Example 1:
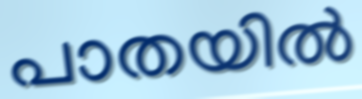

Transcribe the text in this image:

പാതയിൽ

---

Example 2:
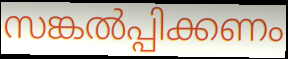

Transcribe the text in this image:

സങ്കൽപ്പിക്കണം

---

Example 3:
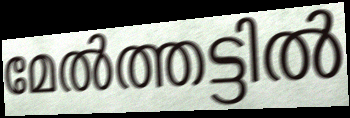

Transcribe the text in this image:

മേൽത്തട്ടിൽ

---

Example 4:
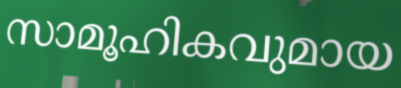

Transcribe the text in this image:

സാമൂഹികവുമായ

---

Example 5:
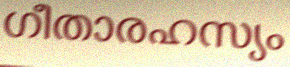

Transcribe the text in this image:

ഗീതാരഹസ്യം